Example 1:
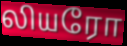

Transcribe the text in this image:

லியரோ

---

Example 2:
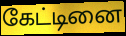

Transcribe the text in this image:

கேட்டினை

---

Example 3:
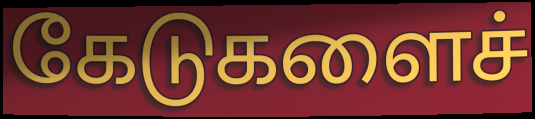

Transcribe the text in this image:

கேடுகளைச்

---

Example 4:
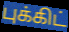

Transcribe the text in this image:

புக்கிட்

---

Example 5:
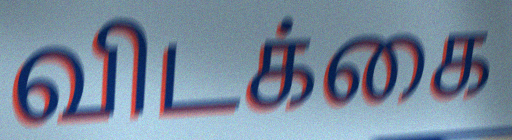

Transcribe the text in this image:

விடக்கை